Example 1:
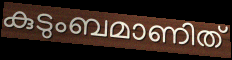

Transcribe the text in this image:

കുടുംബമാണിത്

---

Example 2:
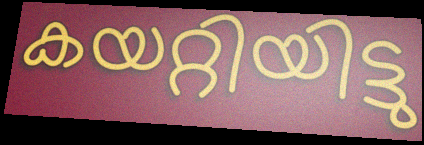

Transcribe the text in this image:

കയറ്റിയിട്ടു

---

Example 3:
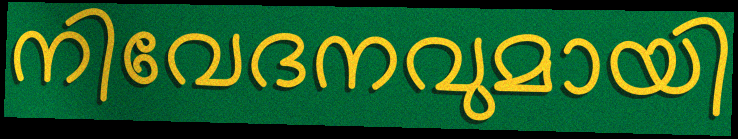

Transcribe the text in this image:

നിവേദനവുമായി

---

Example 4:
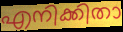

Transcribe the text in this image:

എനിക്കിതാ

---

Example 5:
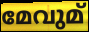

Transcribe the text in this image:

മേവുമ്